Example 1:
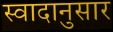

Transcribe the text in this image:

स्वादानुसार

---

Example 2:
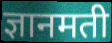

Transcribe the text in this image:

ज्ञानमती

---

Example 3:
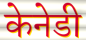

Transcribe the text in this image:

केनेडी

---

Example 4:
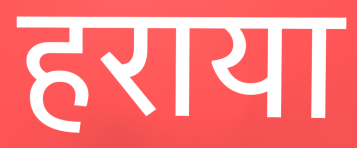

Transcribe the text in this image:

हराया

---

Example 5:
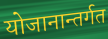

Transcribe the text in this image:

योजानान्तर्गत